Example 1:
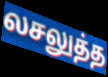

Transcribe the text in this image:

லசலுத்த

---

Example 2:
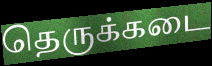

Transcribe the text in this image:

தெருக்கடை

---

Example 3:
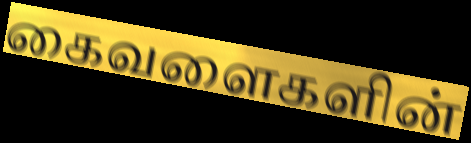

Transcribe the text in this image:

கைவளைகளின்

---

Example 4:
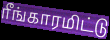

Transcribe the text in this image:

ரீங்காரமிட்டு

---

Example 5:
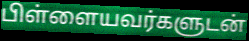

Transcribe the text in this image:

பிள்ளையவர்களுடன்